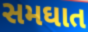
સમઘાત